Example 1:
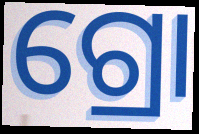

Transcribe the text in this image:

ଗ୍ରୋ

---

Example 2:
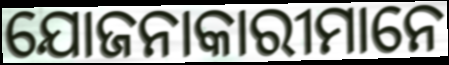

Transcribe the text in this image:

ଯୋଜନାକାରୀମାନେ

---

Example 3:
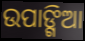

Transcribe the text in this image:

ଉପାଙ୍ଗିଆ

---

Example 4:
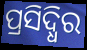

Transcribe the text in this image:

ପ୍ରସିଦ୍ଧିର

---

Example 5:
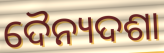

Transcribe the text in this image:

ଦୈନ୍ୟଦଶା